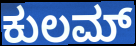
ಕುಲಮ್